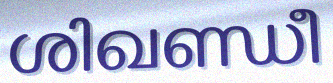
ശിഖണ്ഡീ